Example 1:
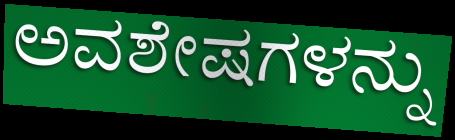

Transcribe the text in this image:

ಅವಶೇಷಗಳನ್ನು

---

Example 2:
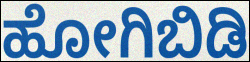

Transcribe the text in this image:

ಹೋಗಿಬಿಡಿ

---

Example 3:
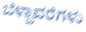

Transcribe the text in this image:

ಬೆಳ್ದಾವರೆಗಳು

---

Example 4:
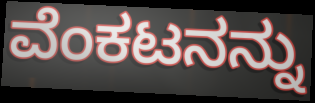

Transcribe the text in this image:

ವೆಂಕಟನನ್ನು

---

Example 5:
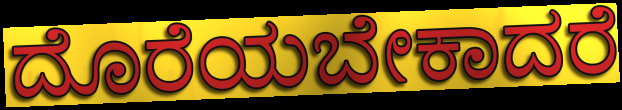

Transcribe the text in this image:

ದೊರೆಯಬೇಕಾದರೆ